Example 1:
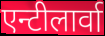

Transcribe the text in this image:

एन्टीलार्वा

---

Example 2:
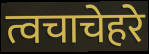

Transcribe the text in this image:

त्वचाचेहरे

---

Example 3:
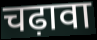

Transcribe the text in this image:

चढ़ावा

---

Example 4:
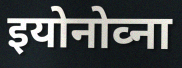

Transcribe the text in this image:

इयोनोव्ना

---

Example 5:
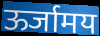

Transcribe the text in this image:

ऊर्जामय